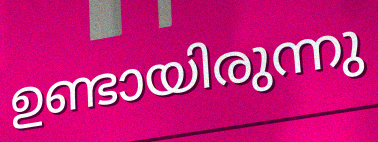
ഉണ്ടായിരുന്നു